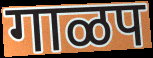
गाळप